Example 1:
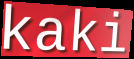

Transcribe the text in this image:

kaki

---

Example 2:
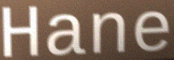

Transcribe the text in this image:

Hane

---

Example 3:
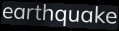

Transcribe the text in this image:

earthquake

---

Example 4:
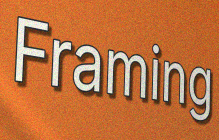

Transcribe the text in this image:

Framing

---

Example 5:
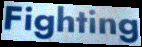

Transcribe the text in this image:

Fighting